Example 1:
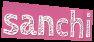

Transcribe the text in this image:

sanchi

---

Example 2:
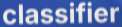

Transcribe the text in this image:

classifier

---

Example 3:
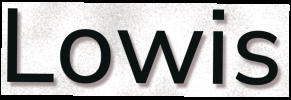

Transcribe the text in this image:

Lowis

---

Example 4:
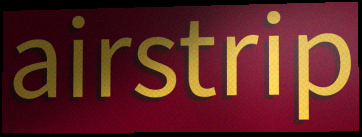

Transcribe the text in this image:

airstrip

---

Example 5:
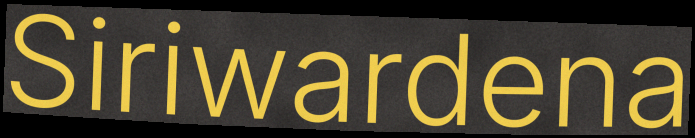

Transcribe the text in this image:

Siriwardena